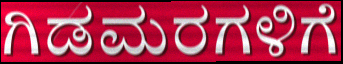
ಗಿಡಮರಗಳಿಗೆ